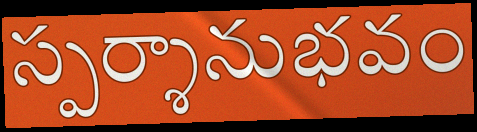
స్పర్శానుభవం